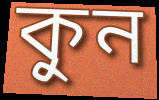
কুন